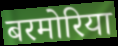
बरमोरिया